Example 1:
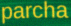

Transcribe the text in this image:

parcha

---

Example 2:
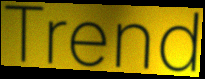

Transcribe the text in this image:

Trend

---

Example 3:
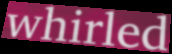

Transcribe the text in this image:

whirled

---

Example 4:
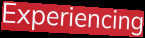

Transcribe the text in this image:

Experiencing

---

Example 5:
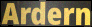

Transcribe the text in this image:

Ardern